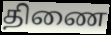
திணை